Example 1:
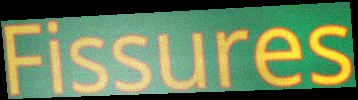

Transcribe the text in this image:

Fissures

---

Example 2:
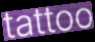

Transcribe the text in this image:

tattoo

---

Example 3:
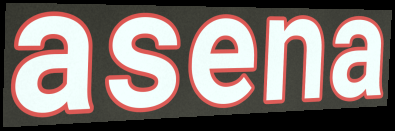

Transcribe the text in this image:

asena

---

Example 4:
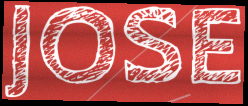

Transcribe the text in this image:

JOSE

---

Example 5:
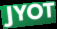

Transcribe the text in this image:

JYOT